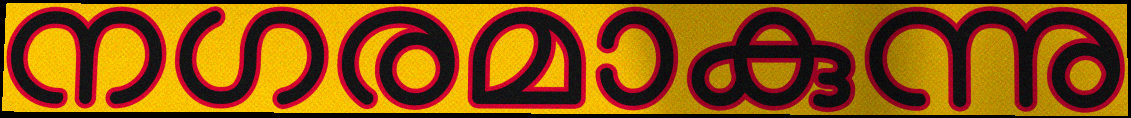
നഗരമാകുന്നു